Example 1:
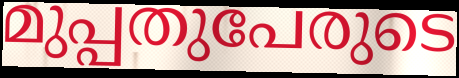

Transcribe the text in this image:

മുപ്പതുപേരുടെ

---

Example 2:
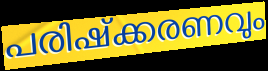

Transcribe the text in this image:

പരിഷ്ക്കരണവും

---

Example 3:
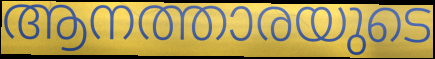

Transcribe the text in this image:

ആനത്താരയുടെ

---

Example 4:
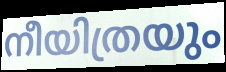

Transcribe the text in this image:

നീയിത്രയും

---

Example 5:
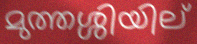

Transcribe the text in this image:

മുത്തശ്ശിയില്